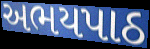
અભયપાઠ